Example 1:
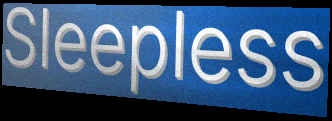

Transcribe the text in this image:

Sleepless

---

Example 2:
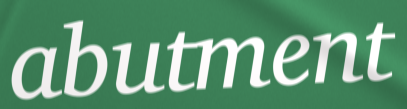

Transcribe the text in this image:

abutment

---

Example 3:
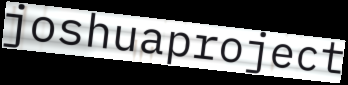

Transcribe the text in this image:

joshuaproject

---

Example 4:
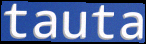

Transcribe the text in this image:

tauta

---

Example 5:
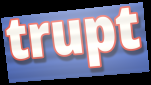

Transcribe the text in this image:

trupt